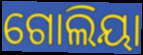
ଗୋଲିୟା